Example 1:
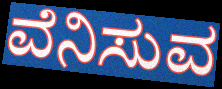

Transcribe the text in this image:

ವೆನಿಸುವ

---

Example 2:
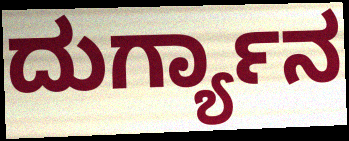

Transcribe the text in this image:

ದುರ್ಗ್ಯಾನ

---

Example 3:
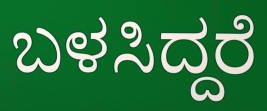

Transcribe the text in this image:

ಬಳಸಿದ್ದರೆ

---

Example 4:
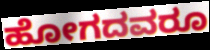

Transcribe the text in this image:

ಹೋಗದವರೂ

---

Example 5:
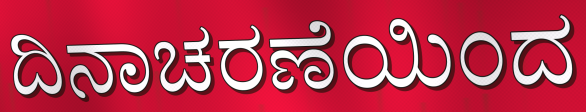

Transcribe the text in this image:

ದಿನಾಚರಣೆಯಿಂದ